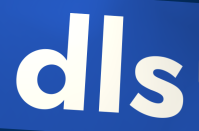
dls